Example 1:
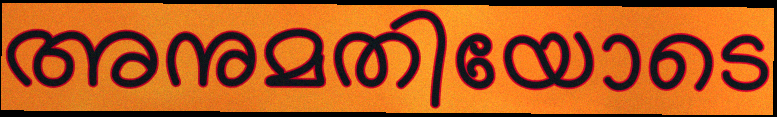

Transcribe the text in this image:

അനുമതിയോടെ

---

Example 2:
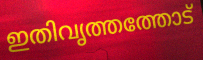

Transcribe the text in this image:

ഇതിവൃത്തത്തോട്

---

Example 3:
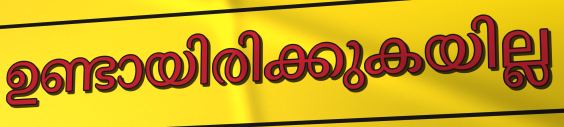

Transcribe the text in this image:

ഉണ്ടായിരിക്കുകയില്ല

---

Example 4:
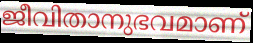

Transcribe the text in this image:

ജീവിതാനുഭവമാണ്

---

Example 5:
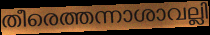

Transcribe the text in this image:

തീരെത്തന്നാശാവല്ലി